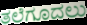
ತಲೆಗೂದಲು